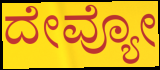
ದೇವ್ಯೋ